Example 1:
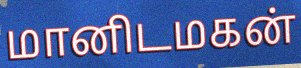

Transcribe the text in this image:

மானிடமகன்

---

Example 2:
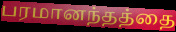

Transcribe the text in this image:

பரமானந்தத்தை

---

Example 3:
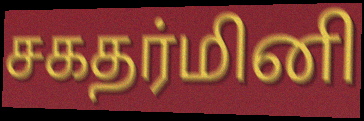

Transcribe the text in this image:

சகதர்மினி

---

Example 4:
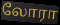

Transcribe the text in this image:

லோரா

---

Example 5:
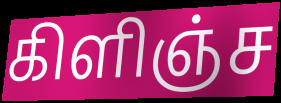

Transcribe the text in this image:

கிளிஞ்ச